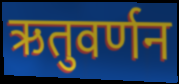
ऋतुवर्णन